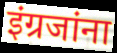
इंग्रजांना